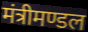
मंत्रीमण्डल